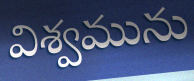
విశ్వమును